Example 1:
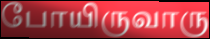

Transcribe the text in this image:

போயிருவாரு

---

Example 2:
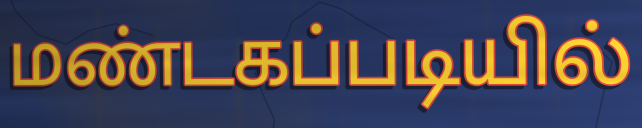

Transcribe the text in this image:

மண்டகப்படியில்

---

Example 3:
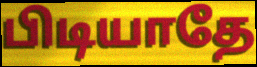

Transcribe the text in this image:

பிடியாதே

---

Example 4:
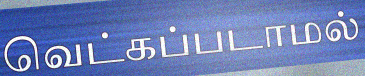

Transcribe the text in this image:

வெட்கப்படாமல்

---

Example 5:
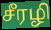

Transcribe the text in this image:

சீரழி